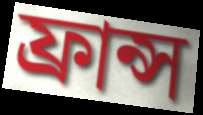
ফ্ৰান্স